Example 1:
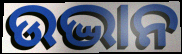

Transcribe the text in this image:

ଉଦ୍ଭାନ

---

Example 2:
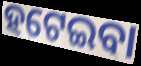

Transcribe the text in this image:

ହଟେଇବା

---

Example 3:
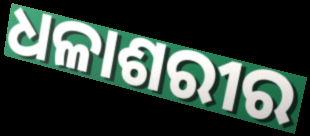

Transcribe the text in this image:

ଧଳାଶରୀର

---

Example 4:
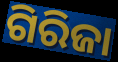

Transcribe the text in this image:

ଗିରିଜା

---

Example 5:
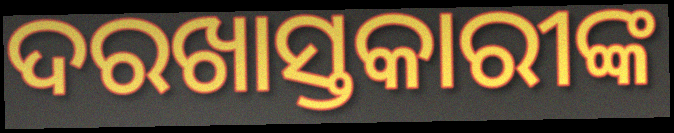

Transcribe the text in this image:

ଦରଖାସ୍ତକାରୀଙ୍କ